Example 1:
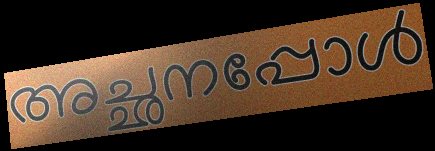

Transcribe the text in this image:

അച്ഛനപ്പോൾ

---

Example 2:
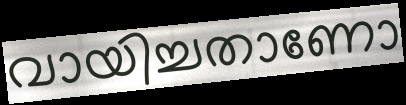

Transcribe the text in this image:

വായിച്ചതാണോ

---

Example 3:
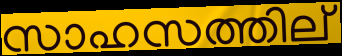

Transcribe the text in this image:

സാഹസത്തില്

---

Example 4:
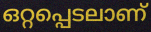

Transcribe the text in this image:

ഒറ്റപ്പെടലാണ്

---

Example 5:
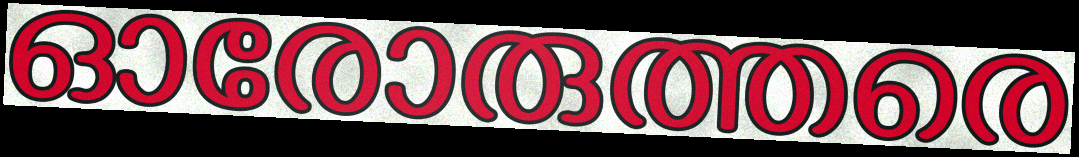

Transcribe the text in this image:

ഓരോരുത്തരെ